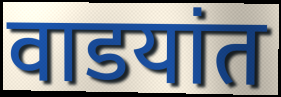
वाडयांत